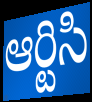
ఆర్టిసి